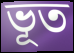
ভূত